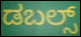
ಡಬಲ್ಸ್